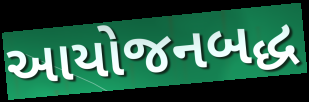
આયોજનબદ્ધ